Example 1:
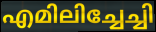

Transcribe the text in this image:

എമിലിച്ചേച്ചി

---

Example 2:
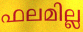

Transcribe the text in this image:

ഫലമില്ല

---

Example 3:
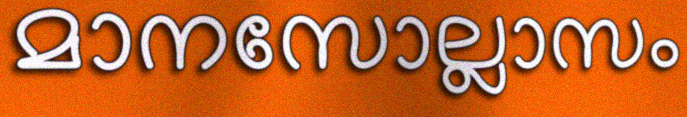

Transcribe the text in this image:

മാനസോല്ലാസം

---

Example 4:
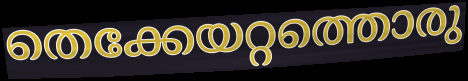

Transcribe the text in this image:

തെക്കേയറ്റത്തൊരു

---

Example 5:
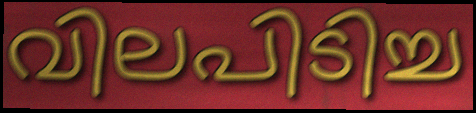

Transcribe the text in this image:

വിലപിടിച്ച